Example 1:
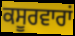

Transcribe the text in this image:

ਕਸੂਰਵਾਰਾਂ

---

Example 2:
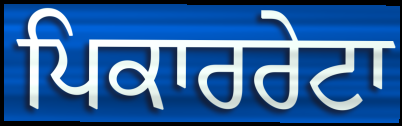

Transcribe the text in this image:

ਪਿਕਾਰਰੇਟਾ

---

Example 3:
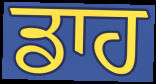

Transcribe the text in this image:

ਡਾਹ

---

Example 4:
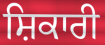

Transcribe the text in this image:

ਸ਼ਿਕਾਰੀ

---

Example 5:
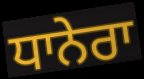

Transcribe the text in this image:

ਧਾਨੇਰਾ